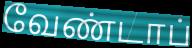
வேண்டாப்